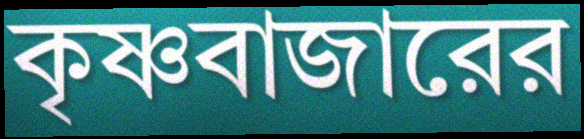
কৃষ্ণবাজারের